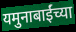
यमुनाबाईंच्या